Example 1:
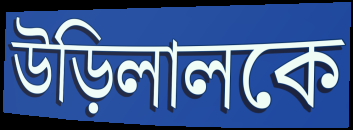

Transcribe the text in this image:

উড়িলালকে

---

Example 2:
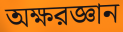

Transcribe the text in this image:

অক্ষরজ্ঞান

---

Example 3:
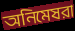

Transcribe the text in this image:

অনিমেষরা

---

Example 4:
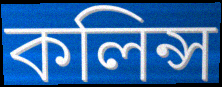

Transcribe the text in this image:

কলিন্স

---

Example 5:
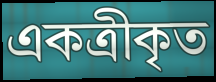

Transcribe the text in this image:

একত্রীকৃত